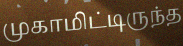
முகாமிட்டிருந்த